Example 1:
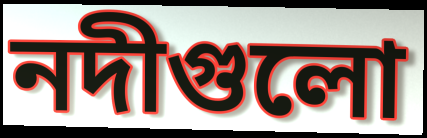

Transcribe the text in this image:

নদীগুলো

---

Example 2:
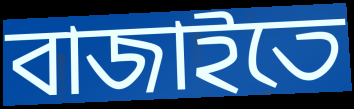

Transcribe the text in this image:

বাজাইতে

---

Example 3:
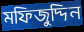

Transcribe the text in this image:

মফিজুদ্দিন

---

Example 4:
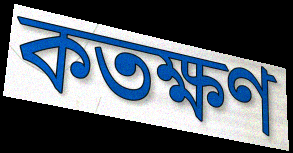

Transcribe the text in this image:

কতক্ষণ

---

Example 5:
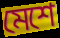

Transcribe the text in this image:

মেশে